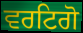
ਵਰਟਿਗੋ